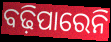
ବଢ଼ିପାରେନି